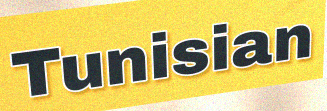
Tunisian